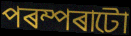
পৰম্পৰাটো